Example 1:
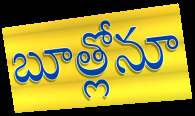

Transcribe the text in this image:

బూత్లోనూ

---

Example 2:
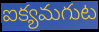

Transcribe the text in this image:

ఐక్యమగుట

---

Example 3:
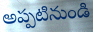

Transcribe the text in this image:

అప్పటినుండి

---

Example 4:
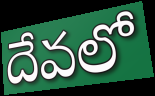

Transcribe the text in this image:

దేవలో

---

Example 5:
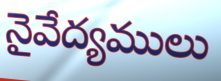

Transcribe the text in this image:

నైవేద్యములు